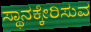
ಸ್ಥಾನಕ್ಕೇರಿಸುವ